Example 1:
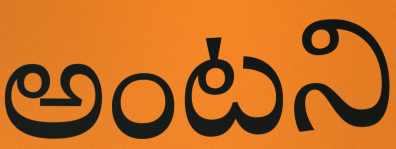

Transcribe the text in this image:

అంటని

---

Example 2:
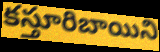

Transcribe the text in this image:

కస్తూరిబాయిని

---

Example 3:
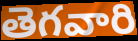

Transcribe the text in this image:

తెగవారి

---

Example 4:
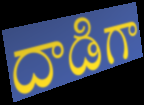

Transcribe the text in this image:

దాడిగా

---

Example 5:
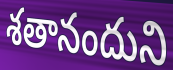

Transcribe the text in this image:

శతానందుని